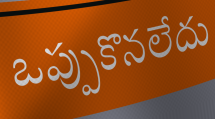
ఒప్పుకొనలేదు